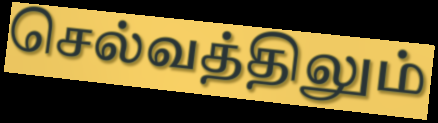
செல்வத்திலும்